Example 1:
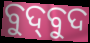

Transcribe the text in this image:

ବୁଦ୍‍ବୁଦ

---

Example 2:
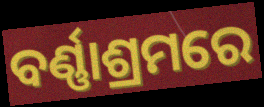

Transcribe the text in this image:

ବର୍ଣ୍ଣାଶ୍ରମରେ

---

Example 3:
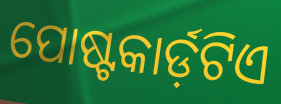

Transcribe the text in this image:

ପୋଷ୍ଟକାର୍ଡ଼ଟିଏ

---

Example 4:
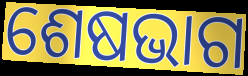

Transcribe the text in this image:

ଶେଷଭାଗ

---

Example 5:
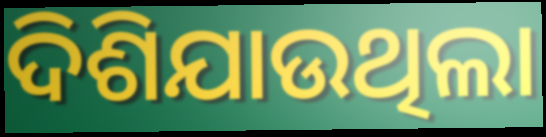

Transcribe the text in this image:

ଦିଶିଯାଉଥିଲା